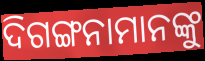
ଦିଗଙ୍ଗନାମାନଙ୍କୁ